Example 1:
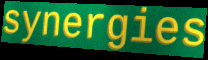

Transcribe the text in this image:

synergies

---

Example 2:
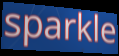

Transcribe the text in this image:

sparkle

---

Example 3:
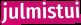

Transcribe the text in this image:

julmistui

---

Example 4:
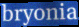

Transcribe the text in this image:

bryonia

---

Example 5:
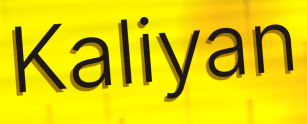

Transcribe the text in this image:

Kaliyan